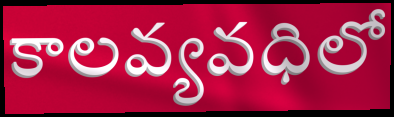
కాలవ్యవధిలో